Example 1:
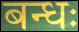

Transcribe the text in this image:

बन्धः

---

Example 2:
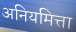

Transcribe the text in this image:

अनियमित्ता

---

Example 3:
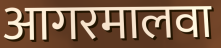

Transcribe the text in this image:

आगरमालवा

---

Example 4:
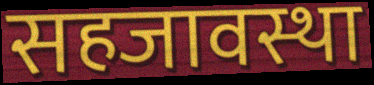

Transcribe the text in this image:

सहजावस्था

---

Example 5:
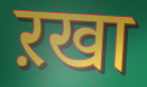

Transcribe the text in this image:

ऱखा